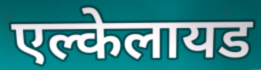
एल्केलायड